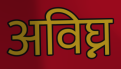
अविघ्न